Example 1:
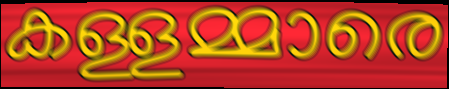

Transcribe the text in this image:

കള്ളമ്മാരെ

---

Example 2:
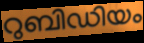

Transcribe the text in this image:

റുബിഡിയം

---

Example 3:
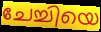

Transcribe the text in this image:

ചേച്ചിയെ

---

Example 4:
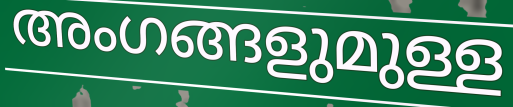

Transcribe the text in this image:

അംഗങ്ങളുമുള്ള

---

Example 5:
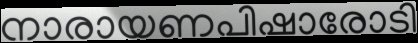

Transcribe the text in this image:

നാരായണപിഷാരോടി